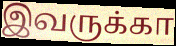
இவருக்கா